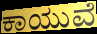
ಕಾಯುವೆ